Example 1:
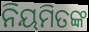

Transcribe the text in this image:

ନିୟମିତଙ୍କ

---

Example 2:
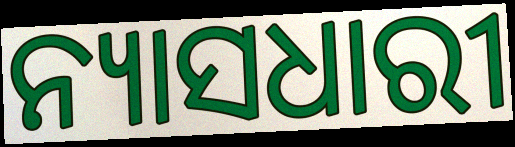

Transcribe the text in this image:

ନ୍ୟାସଧାରୀ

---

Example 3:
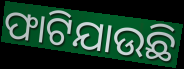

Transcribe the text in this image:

ଫାଟିଯାଉଛି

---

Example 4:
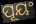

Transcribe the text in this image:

ପୂୟଂ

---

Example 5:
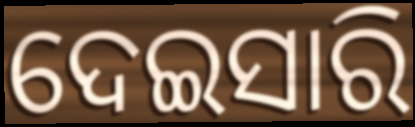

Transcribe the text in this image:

ଦେଇସାରି